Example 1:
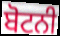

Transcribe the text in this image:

ਬੋਟਨੀ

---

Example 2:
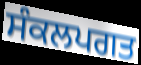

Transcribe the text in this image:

ਸੰਕਲਪਗਤ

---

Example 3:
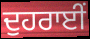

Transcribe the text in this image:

ਦੁਹਰਾਈਂ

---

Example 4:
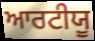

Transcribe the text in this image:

ਆਰਟੀਯੂ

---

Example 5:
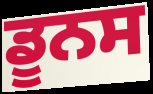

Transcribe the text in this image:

ਡੂਨਸ